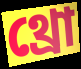
থ্রো